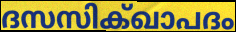
ദസസിക്ഖാപദം